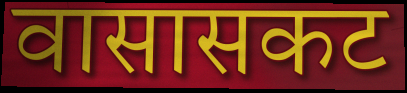
वासासकट